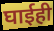
घाईही